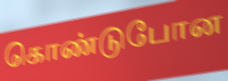
கொண்டுபோன